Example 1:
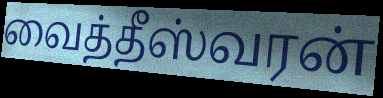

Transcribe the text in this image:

வைத்தீஸ்வரன்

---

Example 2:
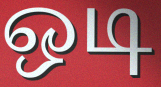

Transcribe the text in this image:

ஒடி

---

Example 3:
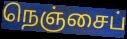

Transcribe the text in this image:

நெஞ்சைப்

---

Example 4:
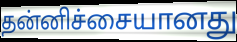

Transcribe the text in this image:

தன்னிச்சையானது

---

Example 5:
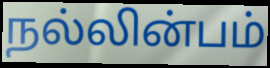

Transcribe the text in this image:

நல்லின்பம்